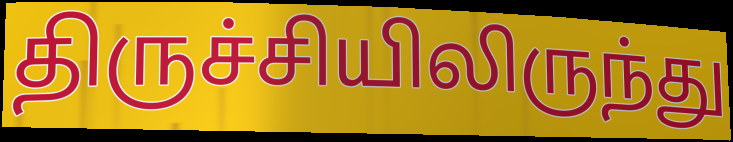
திருச்சியிலிருந்து